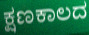
ಕ್ಷಣಕಾಲದ